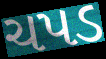
ચપડ